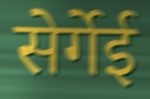
सेर्गेई